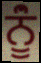
ਨੂਂੰ